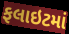
ફલાઇટમાં